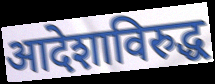
आदेशाविरुद्ध